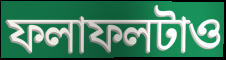
ফলাফলটাও